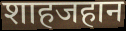
शाहजहान